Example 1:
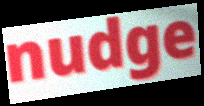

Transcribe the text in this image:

nudge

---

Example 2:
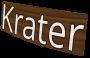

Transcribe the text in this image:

Krater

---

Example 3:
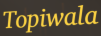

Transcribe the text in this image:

Topiwala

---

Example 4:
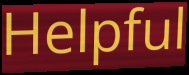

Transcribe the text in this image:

Helpful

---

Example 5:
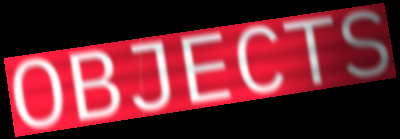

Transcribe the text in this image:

OBJECTS